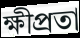
ক্ষীপ্ৰতা